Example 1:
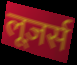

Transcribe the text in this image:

लूज़र्स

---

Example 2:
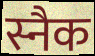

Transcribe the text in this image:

स्नैक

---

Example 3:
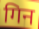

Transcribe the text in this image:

गिन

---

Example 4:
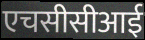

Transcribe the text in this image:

एचसीसीआई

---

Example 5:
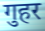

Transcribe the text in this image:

गुहर